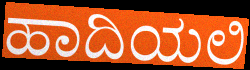
ಹಾದಿಯಲಿ